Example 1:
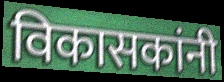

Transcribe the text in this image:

विकासकांनी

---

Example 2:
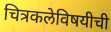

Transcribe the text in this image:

चित्रकलेविषयीची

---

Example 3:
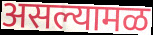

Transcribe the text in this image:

असल्यामळ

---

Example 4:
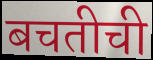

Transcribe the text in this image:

बचतीची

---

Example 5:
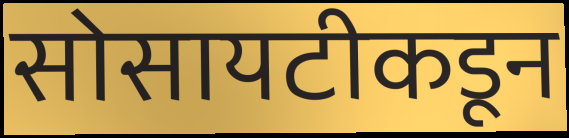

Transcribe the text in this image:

सोसायटीकडून